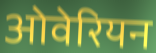
ओवेरियन